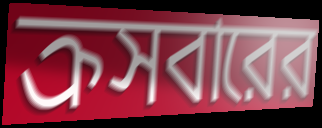
ক্রসবারের